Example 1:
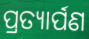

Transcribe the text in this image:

ପ୍ରତ୍ୟାର୍ପଣ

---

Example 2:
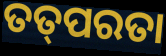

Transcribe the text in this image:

ତତ୍‌ପରତା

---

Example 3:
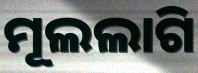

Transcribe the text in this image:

ମୂଲଲାଗି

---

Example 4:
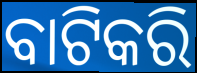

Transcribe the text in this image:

ବାଟିକରି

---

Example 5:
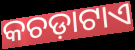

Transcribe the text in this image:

କଚଡ଼ାଟାଏ